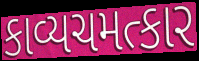
કાવ્યચમત્કાર